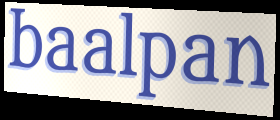
baalpan